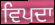
ਵਿਪਦਾ